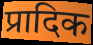
प्रादिक